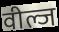
वील्ज